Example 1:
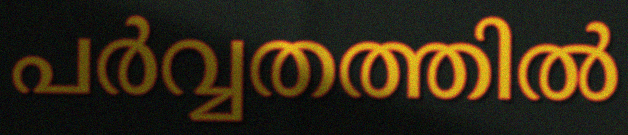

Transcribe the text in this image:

പർവ്വതത്തിൽ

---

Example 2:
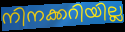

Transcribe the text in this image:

നിനക്കറിയില്ല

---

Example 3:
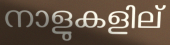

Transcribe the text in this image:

നാളുകളില്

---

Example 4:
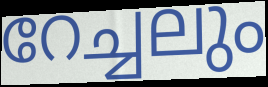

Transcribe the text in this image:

റേച്ചലും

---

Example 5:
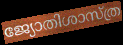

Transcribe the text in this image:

ജ്യോതിശാസ്ത്ര